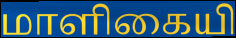
மாளிகையி